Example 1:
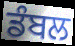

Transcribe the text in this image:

ਡੰਬਲ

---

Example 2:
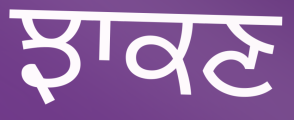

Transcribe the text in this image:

ਝਾਕਣ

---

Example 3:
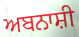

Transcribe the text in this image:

ਅਬਨਾਸ਼ੀ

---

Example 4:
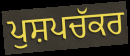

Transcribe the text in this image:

ਪੁਸ਼ਪਚੱਕਰ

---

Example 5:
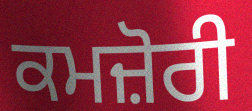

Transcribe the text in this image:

ਕਮਜ਼ੋਰੀ